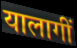
यालागीं